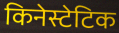
किनेस्टेटिक